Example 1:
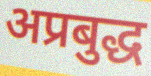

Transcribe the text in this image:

अप्रबुद्ध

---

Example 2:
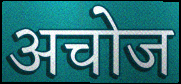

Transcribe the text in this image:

अचोज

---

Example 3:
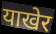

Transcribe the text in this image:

याखेर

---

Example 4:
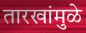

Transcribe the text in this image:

तारखांमुळे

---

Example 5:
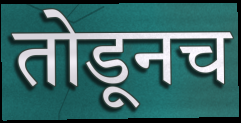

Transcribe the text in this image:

तोडूनच